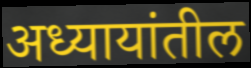
अध्यायांतील